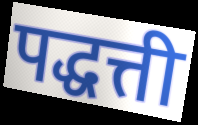
पद्धत्ती